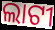
ଲାଟୀ